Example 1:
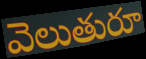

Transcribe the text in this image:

వెలుతురూ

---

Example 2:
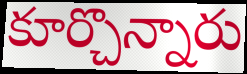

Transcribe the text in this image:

కూర్చొన్నారు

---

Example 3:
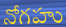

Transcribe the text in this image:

నోగహు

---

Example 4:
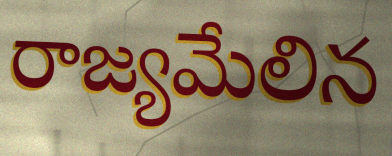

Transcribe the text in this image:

రాజ్యమేలిన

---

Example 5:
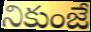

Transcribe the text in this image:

నికుంజే